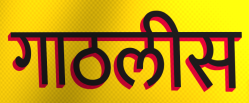
गाठलीस